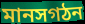
মানসগঠন